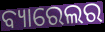
ବ୍ୟାରେଲର